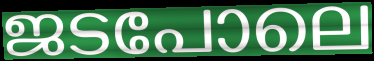
ജടപോലെ